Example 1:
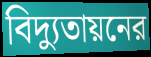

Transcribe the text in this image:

বিদ্যুতায়নের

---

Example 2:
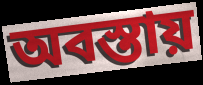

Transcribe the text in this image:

অবস্তায়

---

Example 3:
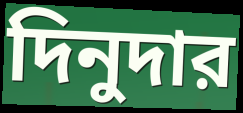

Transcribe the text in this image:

দিনুদার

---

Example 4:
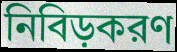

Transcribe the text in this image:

নিবিড়করণ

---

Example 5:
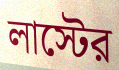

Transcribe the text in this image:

লাস্টের